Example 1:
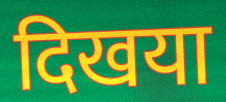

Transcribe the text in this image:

दिखया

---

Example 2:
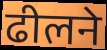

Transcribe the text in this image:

ढीलने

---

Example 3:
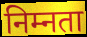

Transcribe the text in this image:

निम्नता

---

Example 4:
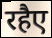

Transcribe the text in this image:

रहैए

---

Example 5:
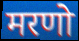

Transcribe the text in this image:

मरणो